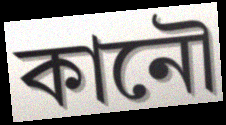
কানৌ